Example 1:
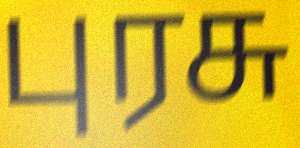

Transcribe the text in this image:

புரசு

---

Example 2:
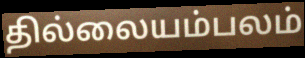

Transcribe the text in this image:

தில்லையம்பலம்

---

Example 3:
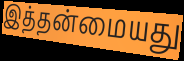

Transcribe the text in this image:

இத்தன்மையது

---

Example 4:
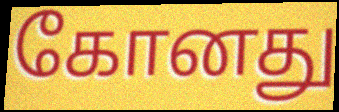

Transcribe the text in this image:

கோனது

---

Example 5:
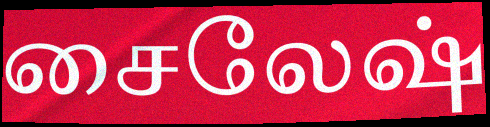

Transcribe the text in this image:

சைலேஷ்